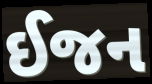
ઈજન